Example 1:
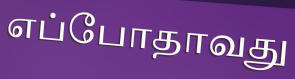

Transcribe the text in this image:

எப்போதாவது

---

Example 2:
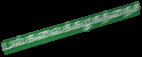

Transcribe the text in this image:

பல்கலைக்கழகத்தைச்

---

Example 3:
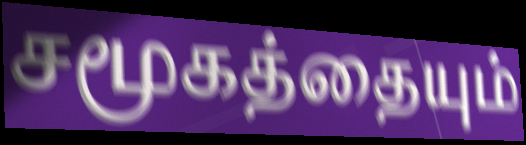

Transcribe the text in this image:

சமூகத்தையும்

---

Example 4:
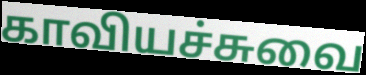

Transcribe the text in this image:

காவியச்சுவை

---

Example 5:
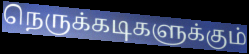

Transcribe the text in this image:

நெருக்கடிகளுக்கும்